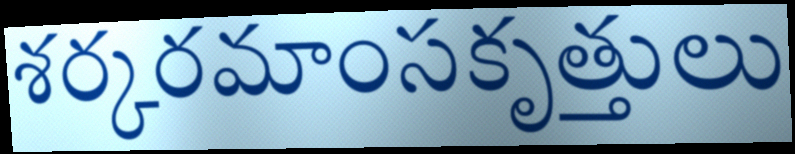
శర్కరమాంసకృత్తులు